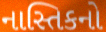
નાસ્તિકનો